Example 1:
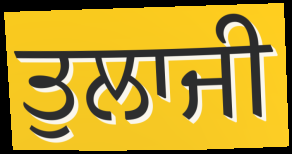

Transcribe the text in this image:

ਤੁਲਾਜੀ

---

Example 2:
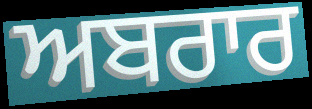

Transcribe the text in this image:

ਅਬਰਾਰ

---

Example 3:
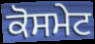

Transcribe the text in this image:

ਕੋਸਮੇਟ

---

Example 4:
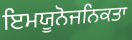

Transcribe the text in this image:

ਇਮਯੂਨੋਜਨਿਕਤਾ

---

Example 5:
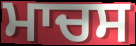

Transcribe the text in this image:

ਮਾਚਸ